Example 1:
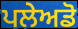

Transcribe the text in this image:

ਪਲੇਅਡੋ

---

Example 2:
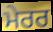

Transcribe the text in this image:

ਮੇਰਰ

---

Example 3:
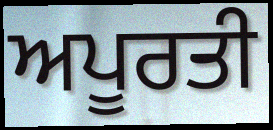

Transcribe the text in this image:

ਅਪੂਰਤੀ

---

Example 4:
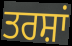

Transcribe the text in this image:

ਤਰਸ਼ਾਂ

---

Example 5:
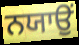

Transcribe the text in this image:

ਨਯਾਉਂ